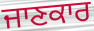
ਜਾਣਕਾਰ